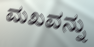
ಮಖವನ್ನು